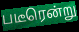
படீரென்று